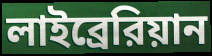
লাইব্রেরিয়ান